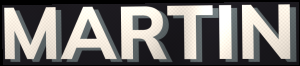
MARTIN